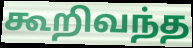
கூறிவந்த